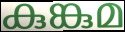
കുങ്കുമ